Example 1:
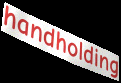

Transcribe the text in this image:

handholding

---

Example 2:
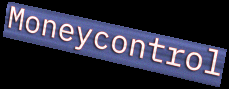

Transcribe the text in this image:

Moneycontrol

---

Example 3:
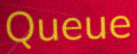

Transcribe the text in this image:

Queue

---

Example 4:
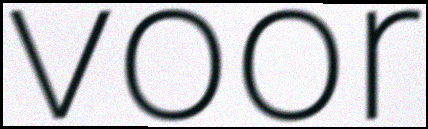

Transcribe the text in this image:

voor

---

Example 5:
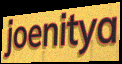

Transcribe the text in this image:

joenitya